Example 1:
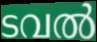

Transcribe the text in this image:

ടവൽ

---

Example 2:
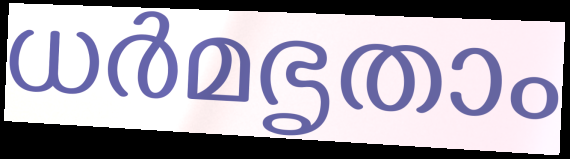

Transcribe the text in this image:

ധർമഭൃതാം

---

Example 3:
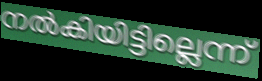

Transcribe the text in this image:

നൽകിയിട്ടില്ലെന്ന്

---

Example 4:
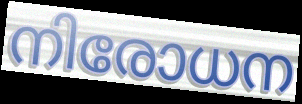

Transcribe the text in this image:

നിരോധന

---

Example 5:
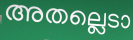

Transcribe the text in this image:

അതല്ലെടാ